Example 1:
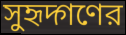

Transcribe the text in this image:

সুহৃদ্গণের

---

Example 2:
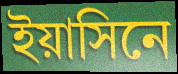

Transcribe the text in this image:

ইয়াসিনে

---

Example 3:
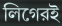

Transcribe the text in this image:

লিগেরই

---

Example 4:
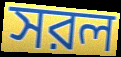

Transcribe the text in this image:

সরল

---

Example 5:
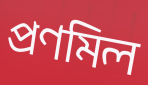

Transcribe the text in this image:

প্রণমিল